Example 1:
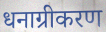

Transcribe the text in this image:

धनाग्रीकरण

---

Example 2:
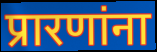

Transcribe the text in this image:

प्रारणांना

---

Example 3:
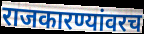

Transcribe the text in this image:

राजकारण्यांवरच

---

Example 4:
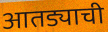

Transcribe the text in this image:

आतड्याची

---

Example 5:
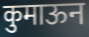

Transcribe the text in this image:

कुमाऊन